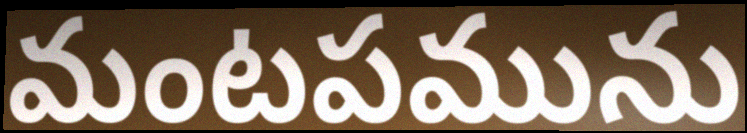
మంటపమును